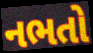
નભતો